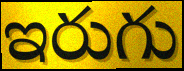
ఇరుగు